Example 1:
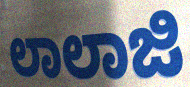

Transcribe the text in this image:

ಲಾಲಾಜಿ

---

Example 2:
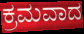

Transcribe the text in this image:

ಕ್ರಮವಾದ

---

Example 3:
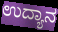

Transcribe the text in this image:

ಉದ್ಯಾನ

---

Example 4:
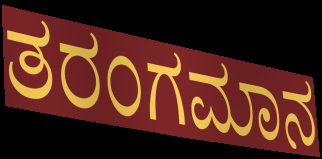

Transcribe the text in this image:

ತರಂಗಮಾನ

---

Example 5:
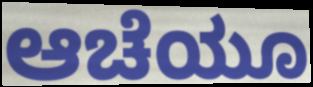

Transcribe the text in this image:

ಆಚೆಯೂ